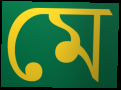
মে